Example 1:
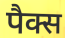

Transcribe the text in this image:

पैक्स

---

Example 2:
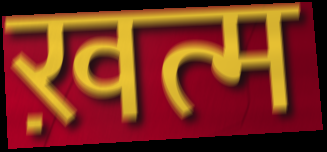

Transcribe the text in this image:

ख़त्म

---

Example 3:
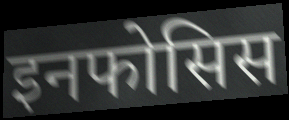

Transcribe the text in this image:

इनफोसिस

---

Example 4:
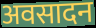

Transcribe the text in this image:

अवसादन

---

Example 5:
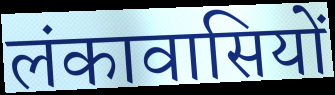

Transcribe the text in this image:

लंकावासियों